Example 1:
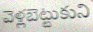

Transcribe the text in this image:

వెళ్లబెట్టుకుని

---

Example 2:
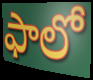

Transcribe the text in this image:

ఫాలో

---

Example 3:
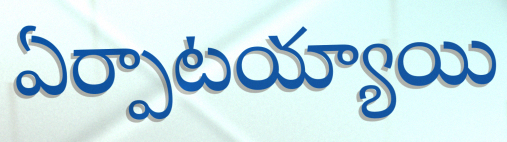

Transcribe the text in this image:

ఏర్పాటయ్యాయి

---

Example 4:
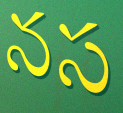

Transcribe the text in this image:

నస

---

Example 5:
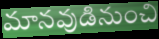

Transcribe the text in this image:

మానవుడినుంచి